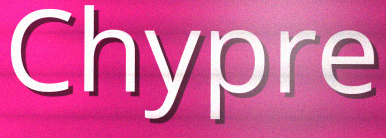
Chypre